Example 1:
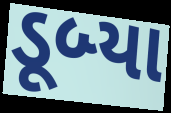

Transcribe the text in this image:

ડૂબ્યા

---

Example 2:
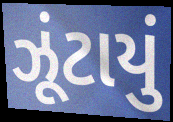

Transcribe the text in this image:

ઝૂંટાયું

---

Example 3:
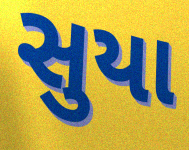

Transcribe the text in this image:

સુયા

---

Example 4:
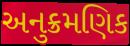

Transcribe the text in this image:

અનુક્રમણિક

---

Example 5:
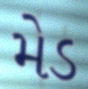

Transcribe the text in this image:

મેડ